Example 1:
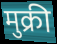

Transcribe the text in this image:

मुक्री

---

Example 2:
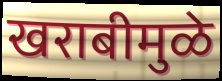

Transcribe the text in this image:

खराबीमुळे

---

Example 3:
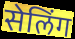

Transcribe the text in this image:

सेलिंग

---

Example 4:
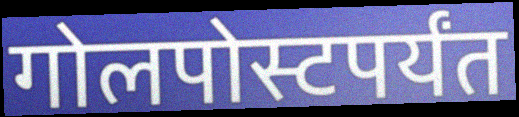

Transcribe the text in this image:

गोलपोस्टपर्यंत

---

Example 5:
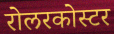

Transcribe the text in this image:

रोलरकोस्टर